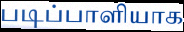
படிப்பாளியாக